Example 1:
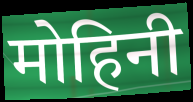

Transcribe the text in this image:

मोहिनी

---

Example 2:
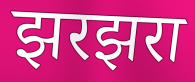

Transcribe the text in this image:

झरझरा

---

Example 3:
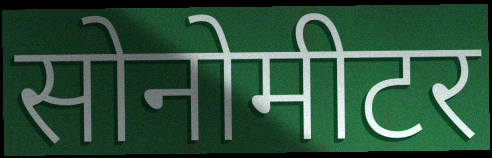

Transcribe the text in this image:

सोनोमीटर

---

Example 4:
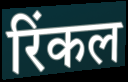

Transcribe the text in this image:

रिंकल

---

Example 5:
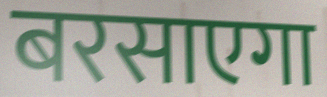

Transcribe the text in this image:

बरसाएगा